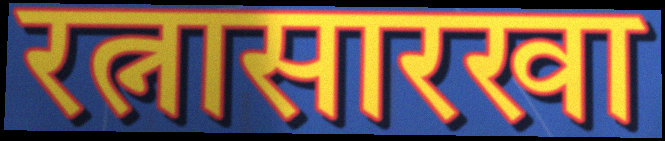
रत्नासारखा